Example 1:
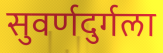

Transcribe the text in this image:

सुवर्णदुर्गला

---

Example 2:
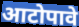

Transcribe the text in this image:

आटोपावे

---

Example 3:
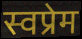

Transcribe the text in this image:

स्वप्रेम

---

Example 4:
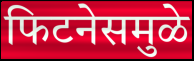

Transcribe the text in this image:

फिटनेसमुळे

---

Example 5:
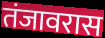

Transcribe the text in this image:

तंजावरास